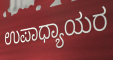
ಉಪಾಧ್ಯಾಯರ